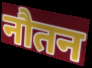
नौतन